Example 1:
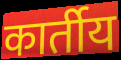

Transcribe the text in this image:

कार्तीय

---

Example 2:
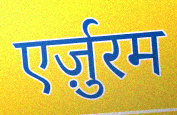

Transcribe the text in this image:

एर्ज़ुरम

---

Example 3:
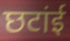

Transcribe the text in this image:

छटांई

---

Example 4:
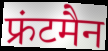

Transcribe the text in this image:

फ्रंटमैन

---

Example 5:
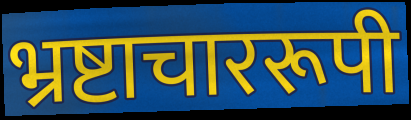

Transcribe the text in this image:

भ्रष्टाचाररूपी